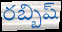
రబ్బిష్